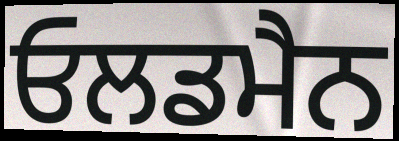
ਓਲਡਮੈਨ